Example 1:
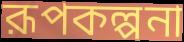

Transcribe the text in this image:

রূপকল্পনা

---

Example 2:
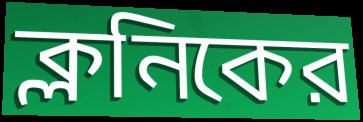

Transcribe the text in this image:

ক্লনিকের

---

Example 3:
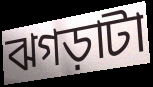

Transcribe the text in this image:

ঝগড়াটা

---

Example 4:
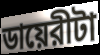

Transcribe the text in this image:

ডায়েরীটা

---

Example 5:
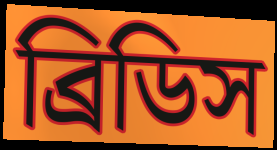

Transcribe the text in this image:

ব্রিডিস